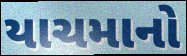
યાચમાનો